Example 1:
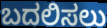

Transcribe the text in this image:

ಬದಲಿಸಲು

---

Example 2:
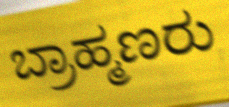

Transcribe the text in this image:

ಬ್ರಾಹ್ಮಣರು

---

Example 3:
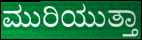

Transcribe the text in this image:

ಮುರಿಯುತ್ತಾ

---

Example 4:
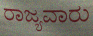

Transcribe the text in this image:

ರಾಜ್ಯವಾರು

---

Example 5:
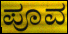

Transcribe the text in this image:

ಪೂವ